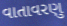
વાતાવરણુ